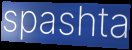
spashta